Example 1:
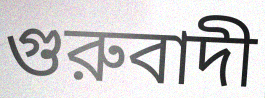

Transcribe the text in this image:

গুরুবাদী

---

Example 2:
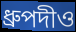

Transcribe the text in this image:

ধ্রুপদীও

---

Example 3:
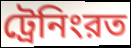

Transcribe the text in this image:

ট্রেনিংরত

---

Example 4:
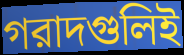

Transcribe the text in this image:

গরাদগুলিই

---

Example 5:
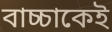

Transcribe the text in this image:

বাচ্চাকেই